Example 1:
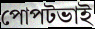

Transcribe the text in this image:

পোপটভাই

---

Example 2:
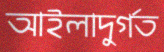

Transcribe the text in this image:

আইলাদুর্গত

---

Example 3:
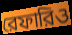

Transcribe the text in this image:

রেফারিও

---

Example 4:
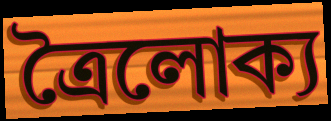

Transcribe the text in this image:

ত্রৈলোক্য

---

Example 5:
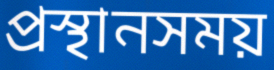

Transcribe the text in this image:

প্রস্থানসময়